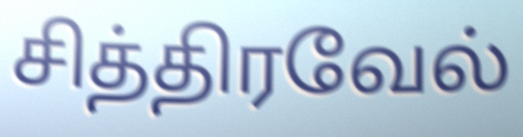
சித்திரவேல்